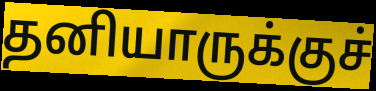
தனியாருக்குச்